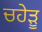
ਚਹੇਡ਼ੂ